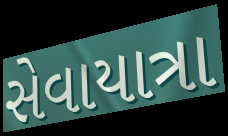
સેવાયાત્રા